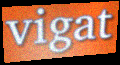
vigat